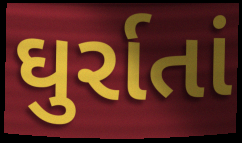
ઘુર્રાતાં